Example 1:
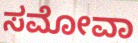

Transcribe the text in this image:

ಸಮೋವಾ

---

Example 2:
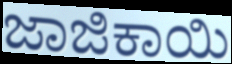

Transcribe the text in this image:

ಜಾಜಿಕಾಯಿ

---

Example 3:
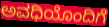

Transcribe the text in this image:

ಅವಧಿಯೊಂದಿಗೆ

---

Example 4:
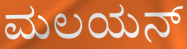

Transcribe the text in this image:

ಮಲಯನ್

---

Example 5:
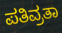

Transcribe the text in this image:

ಪತಿವ್ರತಾ